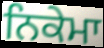
ਨਿਕੇਮਾ